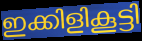
ഇക്കിളികൂട്ടി